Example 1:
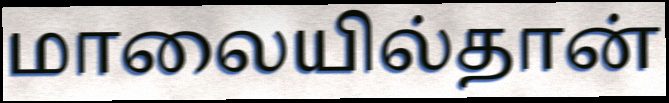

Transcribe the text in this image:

மாலையில்தான்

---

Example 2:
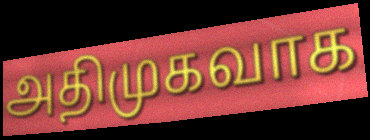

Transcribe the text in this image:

அதிமுகவாக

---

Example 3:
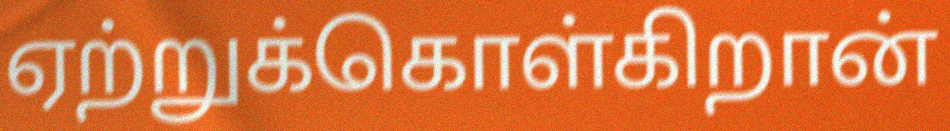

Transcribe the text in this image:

ஏற்றுக்கொள்கிறான்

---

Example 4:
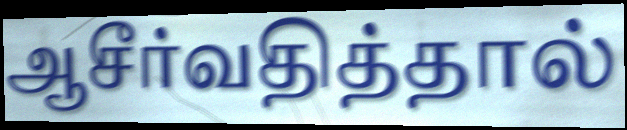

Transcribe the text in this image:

ஆசீர்வதித்தால்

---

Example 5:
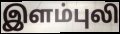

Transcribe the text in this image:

இளம்புலி